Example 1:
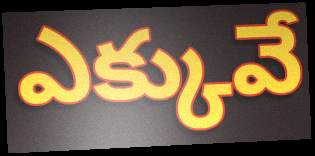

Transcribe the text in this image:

ఎక్కువే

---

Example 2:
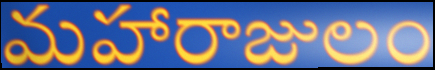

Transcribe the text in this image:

మహారాజులం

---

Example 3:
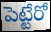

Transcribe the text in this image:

పెట్టేరో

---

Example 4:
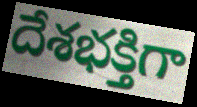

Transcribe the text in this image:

దేశభక్తిగా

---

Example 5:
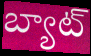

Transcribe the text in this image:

బ్యాట్